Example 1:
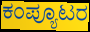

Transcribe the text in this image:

ಕಂಪ್ಯೂಟರ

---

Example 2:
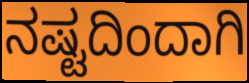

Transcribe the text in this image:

ನಷ್ಟದಿಂದಾಗಿ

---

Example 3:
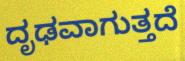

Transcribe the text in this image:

ದೃಢವಾಗುತ್ತದೆ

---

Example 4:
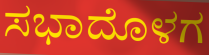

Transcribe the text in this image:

ಸಭಾದೊಳಗ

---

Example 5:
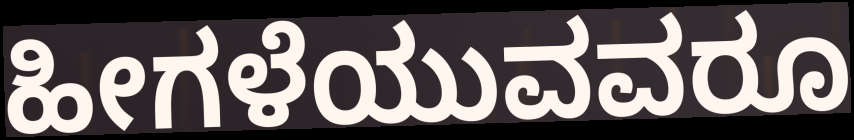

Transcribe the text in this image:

ಹೀಗಳೆಯುವವರೂ